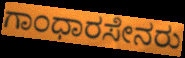
ಗಾಂಧಾರಸೇನರು